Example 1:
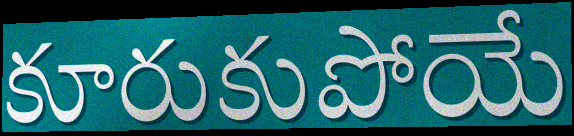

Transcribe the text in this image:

కూరుకుపోయే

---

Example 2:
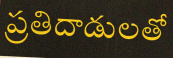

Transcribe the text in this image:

ప్రతిదాడులతో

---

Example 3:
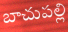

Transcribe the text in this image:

బాచుపల్లి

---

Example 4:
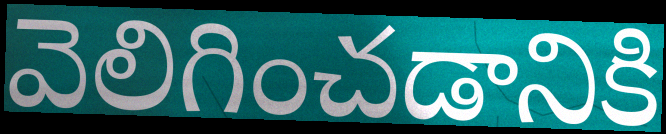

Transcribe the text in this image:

వెలిగించడానికి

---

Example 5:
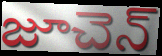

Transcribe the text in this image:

జూచెన్